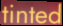
tinted